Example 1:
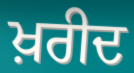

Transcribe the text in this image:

ਖ਼ਰੀਦ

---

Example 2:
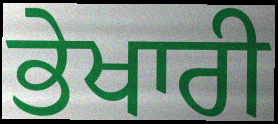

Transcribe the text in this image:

ਭੇਖਾਰੀ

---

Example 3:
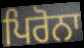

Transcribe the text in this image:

ਪਿਰੋਨਾ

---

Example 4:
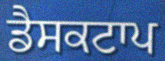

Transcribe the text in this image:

ਡੈਸਕਟਾਪ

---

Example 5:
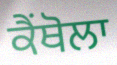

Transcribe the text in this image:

ਕੈਂਥੋਲਾ